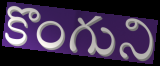
కొంగుని